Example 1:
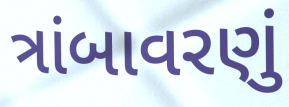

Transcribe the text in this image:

ત્રાંબાવરણું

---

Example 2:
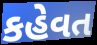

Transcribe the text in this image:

કહેવત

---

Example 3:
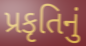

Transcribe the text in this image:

પ્રકૃતિનું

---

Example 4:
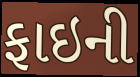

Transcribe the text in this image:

ફાઇની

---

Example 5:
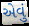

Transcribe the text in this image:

એવું